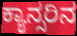
ಕ್ಯಾನ್ಸರಿನ